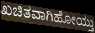
ಖಚಿತವಾಗಿಹೋಯ್ತು